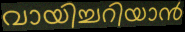
വായിച്ചറിയാൻ